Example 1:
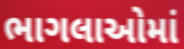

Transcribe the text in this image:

ભાગલાઓમાં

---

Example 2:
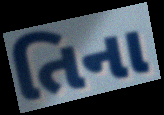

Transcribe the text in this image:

તિના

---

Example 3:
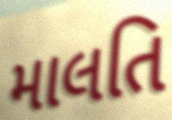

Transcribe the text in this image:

માલતિ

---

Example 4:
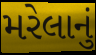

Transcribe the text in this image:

મરેલાનું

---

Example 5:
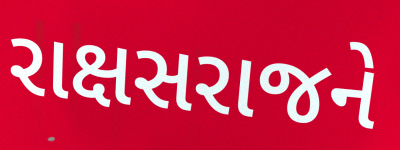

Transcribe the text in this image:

રાક્ષસરાજને